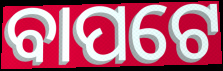
ବାପଟେ